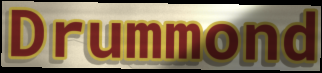
Drummond